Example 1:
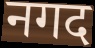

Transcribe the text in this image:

नगद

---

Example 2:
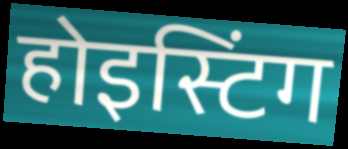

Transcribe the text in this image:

होइस्टिंग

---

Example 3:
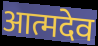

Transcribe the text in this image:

आत्मदेव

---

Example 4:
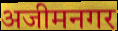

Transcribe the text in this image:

अजीमनगर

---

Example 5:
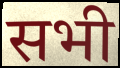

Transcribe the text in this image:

सभी